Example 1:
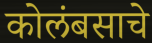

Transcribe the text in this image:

कोलंबसाचे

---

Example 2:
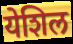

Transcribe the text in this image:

येशिल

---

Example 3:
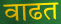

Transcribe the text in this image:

वाढत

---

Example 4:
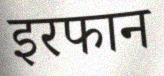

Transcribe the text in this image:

इरफान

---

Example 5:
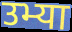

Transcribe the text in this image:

उभ्या